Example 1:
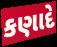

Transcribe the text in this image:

કણાદે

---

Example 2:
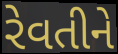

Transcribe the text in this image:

રેવતીને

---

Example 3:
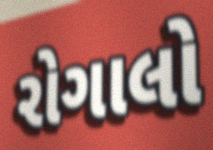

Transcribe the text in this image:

રોગાલો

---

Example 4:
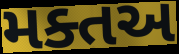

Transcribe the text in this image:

મક્તઅ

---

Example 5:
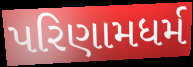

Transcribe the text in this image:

પરિણામધર્મ